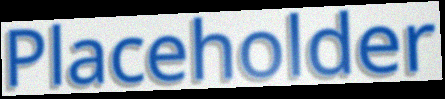
Placeholder